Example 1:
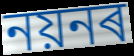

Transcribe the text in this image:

নয়নৰ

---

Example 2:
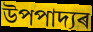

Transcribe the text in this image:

উপপাদ্যৰ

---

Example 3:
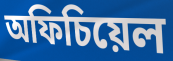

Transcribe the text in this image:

অফিচিয়েল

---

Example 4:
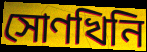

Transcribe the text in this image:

সোণখিনি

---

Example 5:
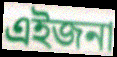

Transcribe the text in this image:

এইজনা